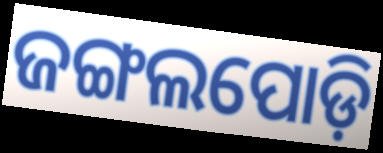
ଜଙ୍ଗଲପୋଡ଼ି